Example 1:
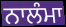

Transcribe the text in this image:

ਨਾਲੰਮਾ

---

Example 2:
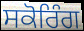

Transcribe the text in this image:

ਸਕੋਰਿੰਗ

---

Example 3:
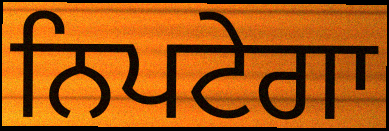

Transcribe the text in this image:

ਨਿਪਟੇਗਾ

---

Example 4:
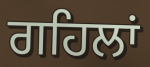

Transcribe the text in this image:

ਗਹਿਲਾਂ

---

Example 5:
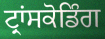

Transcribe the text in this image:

ਟ੍ਰਾਂਸਕੋਡਿੰਗ